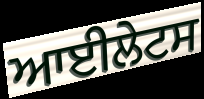
ਆਈਲੇਟਸ